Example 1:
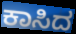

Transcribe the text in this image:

ಕಾಸಿದ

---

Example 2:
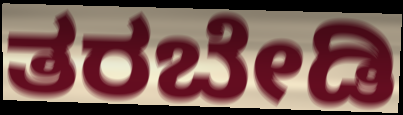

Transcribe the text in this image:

ತರಬೇಡಿ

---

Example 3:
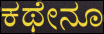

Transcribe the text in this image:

ಕಥೇನೂ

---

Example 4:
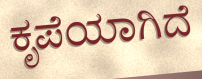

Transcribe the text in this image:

ಕೃಪೆಯಾಗಿದೆ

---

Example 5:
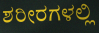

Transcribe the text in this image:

ಶರೀರಗಳಲ್ಲಿ